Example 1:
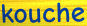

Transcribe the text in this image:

kouche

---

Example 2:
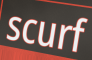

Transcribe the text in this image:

scurf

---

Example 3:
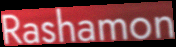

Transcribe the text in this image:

Rashamon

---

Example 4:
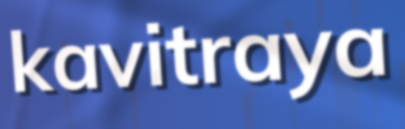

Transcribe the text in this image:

kavitraya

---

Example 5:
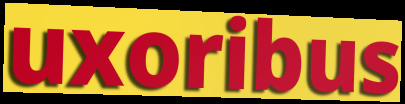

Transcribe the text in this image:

uxoribus